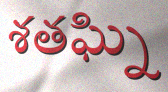
శతఘ్ని